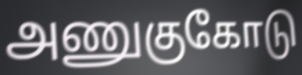
அணுகுகோடு